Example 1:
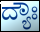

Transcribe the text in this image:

ದ್ಯೌಃ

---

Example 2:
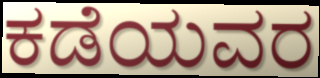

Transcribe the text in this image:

ಕಡೆಯವರ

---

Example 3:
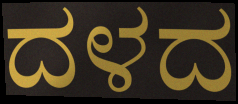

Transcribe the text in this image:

ದಳದ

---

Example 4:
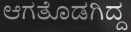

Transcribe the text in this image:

ಆಗತೊಡಗಿದ್ದ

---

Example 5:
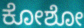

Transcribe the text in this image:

ಕೋಶೋ